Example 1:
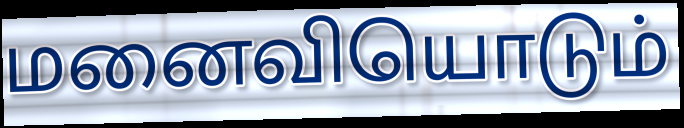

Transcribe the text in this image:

மனைவியொடும்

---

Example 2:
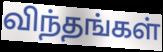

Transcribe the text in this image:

விந்தங்கள்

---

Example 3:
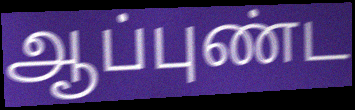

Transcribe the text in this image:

ஆப்புண்ட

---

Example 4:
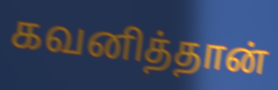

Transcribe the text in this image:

கவனித்தான்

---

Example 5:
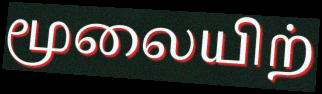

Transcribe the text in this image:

மூலையிற்